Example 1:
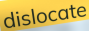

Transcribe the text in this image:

dislocate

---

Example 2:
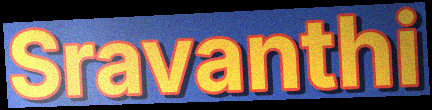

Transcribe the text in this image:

Sravanthi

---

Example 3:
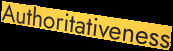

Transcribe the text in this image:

Authoritativeness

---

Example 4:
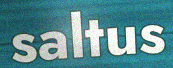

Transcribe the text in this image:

saltus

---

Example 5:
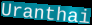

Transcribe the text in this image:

Uranthai